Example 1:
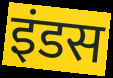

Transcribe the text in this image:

इंडस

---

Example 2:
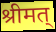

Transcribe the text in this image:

श्रीमत्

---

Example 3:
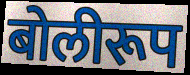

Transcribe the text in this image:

बोलीरूप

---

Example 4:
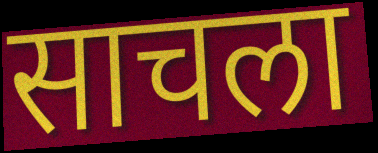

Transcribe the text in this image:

साचला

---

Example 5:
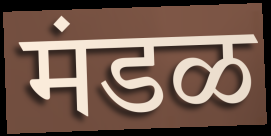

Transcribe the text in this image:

मंडळ